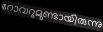
റോവറുമുണ്ടായിരുന്നു